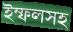
ইম্ফলসহ